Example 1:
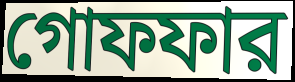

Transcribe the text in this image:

গোফফার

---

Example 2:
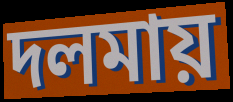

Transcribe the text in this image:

দলমায়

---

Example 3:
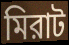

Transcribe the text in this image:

মিরাট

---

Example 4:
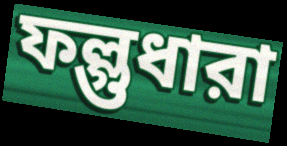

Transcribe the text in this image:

ফল্গুধারা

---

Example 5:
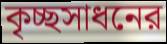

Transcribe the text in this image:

কৃচ্ছসাধনের